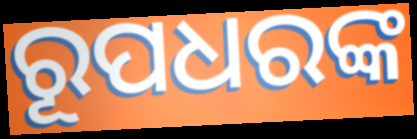
ରୂପଧରଙ୍କ